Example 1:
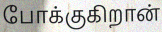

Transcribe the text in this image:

போக்குகிறான்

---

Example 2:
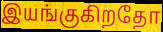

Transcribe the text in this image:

இயங்குகிறதோ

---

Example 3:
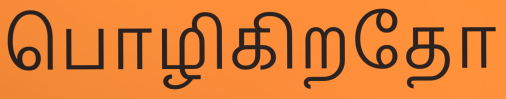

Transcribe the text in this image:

பொழிகிறதோ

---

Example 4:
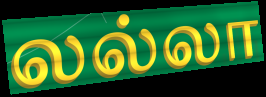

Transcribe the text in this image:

லல்லா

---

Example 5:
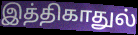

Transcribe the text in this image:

இத்திகாதுல்